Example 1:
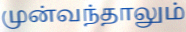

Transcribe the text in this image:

முன்வந்தாலும்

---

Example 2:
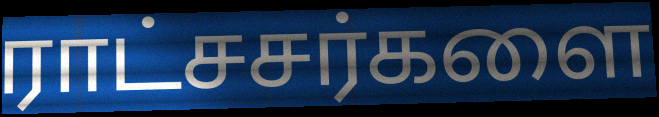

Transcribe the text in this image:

ராட்சசர்களை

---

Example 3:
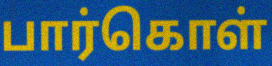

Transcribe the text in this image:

பார்கொள்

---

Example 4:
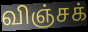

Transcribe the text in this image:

விஞ்சக்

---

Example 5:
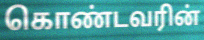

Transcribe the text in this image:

கொண்டவரின்